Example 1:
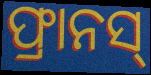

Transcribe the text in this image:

ଫ୍ରାନସ୍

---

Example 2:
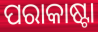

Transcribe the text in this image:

ପରାକାଷ୍ଟା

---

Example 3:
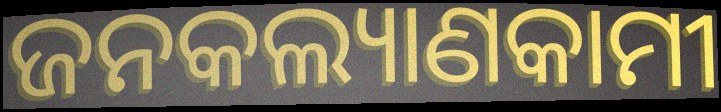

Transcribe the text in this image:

ଜନକଲ୍ୟାଣକାମୀ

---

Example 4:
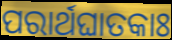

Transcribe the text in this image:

ପରାର୍ଥଘାତକାଃ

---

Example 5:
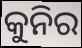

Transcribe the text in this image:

କୁନିର